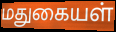
மதுகையள்